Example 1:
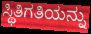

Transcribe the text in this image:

ಸ್ಥಿತಿಗತಿಯನ್ನು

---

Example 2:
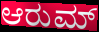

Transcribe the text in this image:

ಆರುಮ್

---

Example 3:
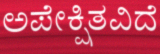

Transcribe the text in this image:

ಅಪೇಕ್ಷಿತವಿದೆ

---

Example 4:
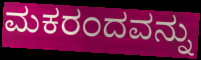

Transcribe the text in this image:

ಮಕರಂದವನ್ನು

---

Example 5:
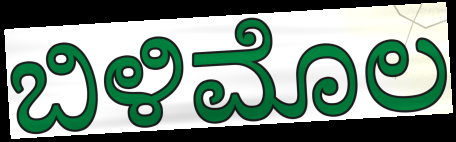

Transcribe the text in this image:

ಬಿಳಿಮೊಲ